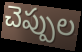
చెప్పుల